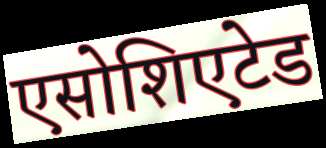
एसोशिएटेड